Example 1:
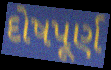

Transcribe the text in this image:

દોષપૂર્ણ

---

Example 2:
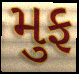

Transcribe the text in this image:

મુફ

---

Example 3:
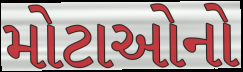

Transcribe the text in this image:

મોટાઓનો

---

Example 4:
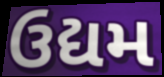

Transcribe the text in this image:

ઉદ્યમ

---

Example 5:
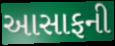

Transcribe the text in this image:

આસાફની